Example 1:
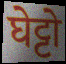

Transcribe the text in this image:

घेट्टो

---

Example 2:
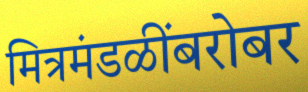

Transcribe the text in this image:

मित्रमंडळींबरोबर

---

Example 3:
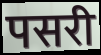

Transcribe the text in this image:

पसरी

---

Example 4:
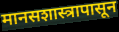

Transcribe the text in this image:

मानसशास्त्रापासून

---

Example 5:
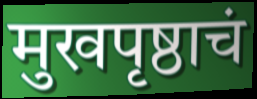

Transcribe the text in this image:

मुखपृष्ठाचं